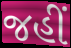
જહીં